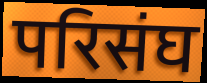
परिसंघ